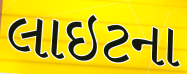
લાઇટના